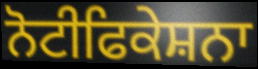
ਨੋਟੀਫਿਕੇਸ਼ਨਾ